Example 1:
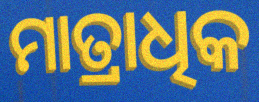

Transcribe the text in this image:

ମାତ୍ରାଧିକ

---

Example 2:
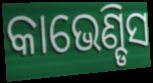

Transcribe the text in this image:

କାଭେଣ୍ଡିସ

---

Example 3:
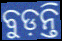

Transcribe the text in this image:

ବୁଡ଼ନ୍ତି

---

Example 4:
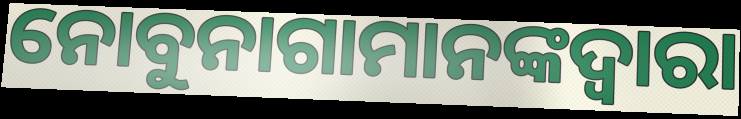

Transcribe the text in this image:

ନୋବୁନାଗାମାନଙ୍କଦ୍ୱାରା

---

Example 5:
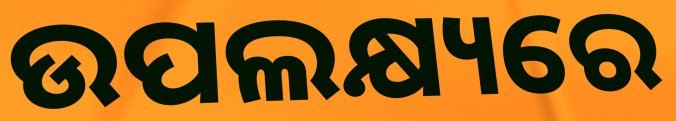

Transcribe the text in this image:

ଉପଲକ୍ଷ୍ୟରେ